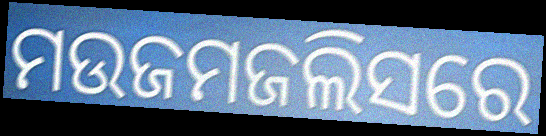
ମଉଜମଜଲିସରେ